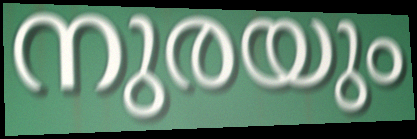
നുരയും